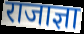
राजाज्ञा